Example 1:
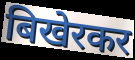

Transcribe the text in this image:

बिखेरकर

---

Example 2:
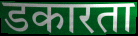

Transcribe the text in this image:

डकारता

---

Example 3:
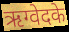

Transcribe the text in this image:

ऋग्वेदके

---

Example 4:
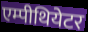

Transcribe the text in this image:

एम्पीथियेटर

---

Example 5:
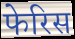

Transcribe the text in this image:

फेरिस